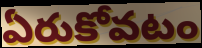
ఏరుకోవటం